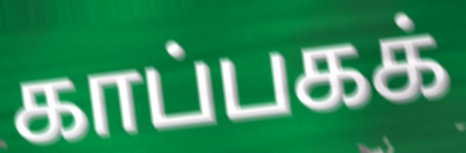
காப்பகக்